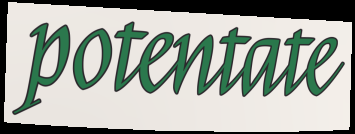
potentate